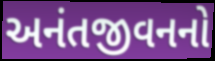
અનંતજીવનનો